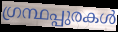
ഗ്രന്ഥപ്പുരകൾ